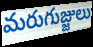
మరుగుజ్జులు